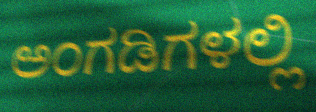
ಅಂಗಡಿಗಳಲ್ಲಿ